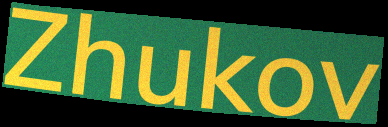
Zhukov